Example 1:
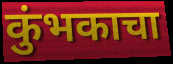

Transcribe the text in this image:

कुंभकाचा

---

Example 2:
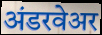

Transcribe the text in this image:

अंडरवेअर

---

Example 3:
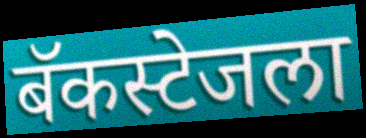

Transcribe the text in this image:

बॅकस्टेजला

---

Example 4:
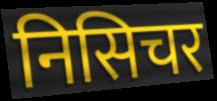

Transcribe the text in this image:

निसिचर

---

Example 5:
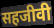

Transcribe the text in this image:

सहजीवी